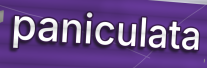
paniculata